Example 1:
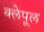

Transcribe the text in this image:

क्लेपूल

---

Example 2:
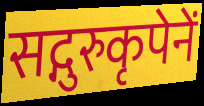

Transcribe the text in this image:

सद्गुरुकृपेनें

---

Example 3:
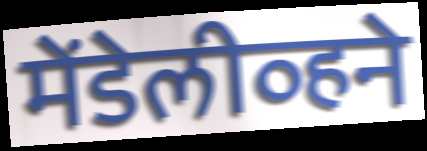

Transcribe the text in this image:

मेंडेलीव्हने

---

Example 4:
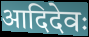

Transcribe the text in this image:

आदिदेवः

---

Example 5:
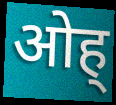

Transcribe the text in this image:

ओह्